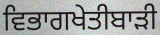
ਵਿਭਾਗਖੇਤੀਬਾੜੀ